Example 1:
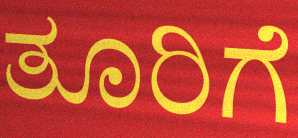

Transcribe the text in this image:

ತೂರಿಗೆ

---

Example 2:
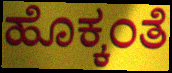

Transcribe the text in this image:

ಹೊಕ್ಕಂತೆ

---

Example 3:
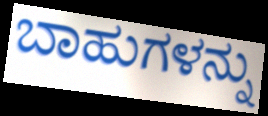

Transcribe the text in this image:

ಬಾಹುಗಳನ್ನು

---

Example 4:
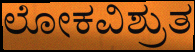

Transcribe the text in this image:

ಲೋಕವಿಶ್ರುತ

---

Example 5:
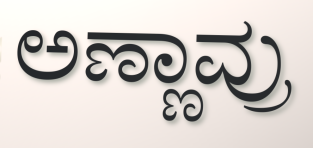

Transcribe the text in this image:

ಅಣ್ಣಾವ್ರು